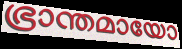
ഭ്രാന്തമായോ